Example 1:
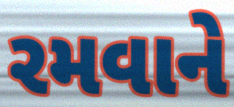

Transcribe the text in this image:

રમવાને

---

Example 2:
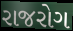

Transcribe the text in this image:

રાજરોગ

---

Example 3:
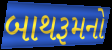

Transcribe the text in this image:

બાથરૂમનો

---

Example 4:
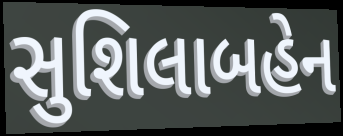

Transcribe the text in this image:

સુશિલાબહેન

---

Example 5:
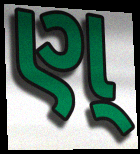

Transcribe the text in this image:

ણ્